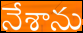
నేశాను